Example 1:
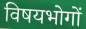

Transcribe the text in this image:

विषयभोगों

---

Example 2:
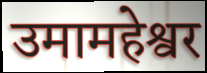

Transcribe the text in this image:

उमामहेश्वर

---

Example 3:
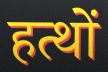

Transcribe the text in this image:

हत्थों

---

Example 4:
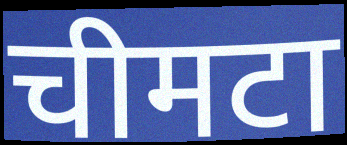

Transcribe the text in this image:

चीमटा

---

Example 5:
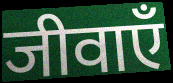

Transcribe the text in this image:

जीवाएँ